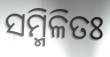
ସମ୍ମିଳିତଃ